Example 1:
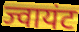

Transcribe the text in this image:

ज्वायंट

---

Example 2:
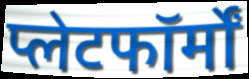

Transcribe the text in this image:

प्लेटफॉर्मों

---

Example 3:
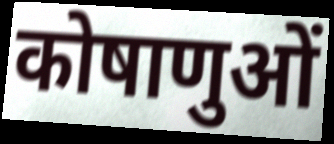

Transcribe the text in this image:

कोषाणुओं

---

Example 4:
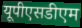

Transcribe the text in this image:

यूपीएसडीएम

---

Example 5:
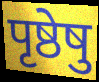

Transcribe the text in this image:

पृष्ठेषु